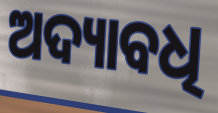
ଅଦ୍ୟାବଧି